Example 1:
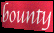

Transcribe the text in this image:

bounty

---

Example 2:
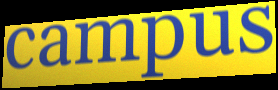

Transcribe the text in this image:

campus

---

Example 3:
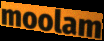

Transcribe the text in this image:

moolam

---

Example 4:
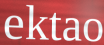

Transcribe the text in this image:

ektao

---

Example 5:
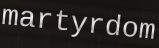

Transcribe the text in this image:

martyrdom